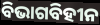
ବିଭାଗବିହୀନ